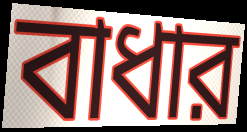
বাধার